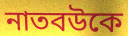
নাতবউকে